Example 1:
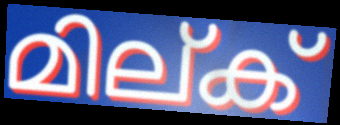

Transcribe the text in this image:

മില്ക്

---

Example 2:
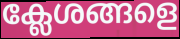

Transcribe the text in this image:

ക്ലേശങ്ങളെ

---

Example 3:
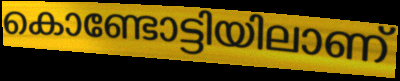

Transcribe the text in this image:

കൊണ്ടോട്ടിയിലാണ്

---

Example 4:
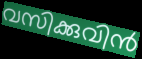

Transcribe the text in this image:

വസിക്കുവിൻ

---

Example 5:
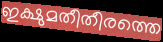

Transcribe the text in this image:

ഇക്ഷുമതീതീരത്തെ